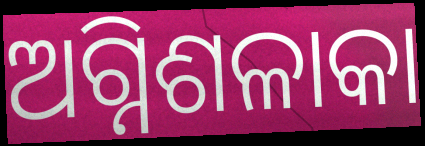
ଅଗ୍ନିଶଳାକା